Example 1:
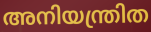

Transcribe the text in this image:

അനിയന്ത്രിത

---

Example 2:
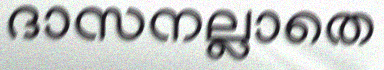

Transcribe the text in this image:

ദാസനല്ലാതെ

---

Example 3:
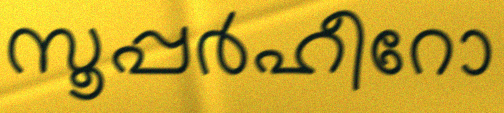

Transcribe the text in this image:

സൂപ്പർഹീറോ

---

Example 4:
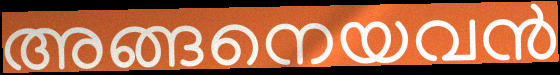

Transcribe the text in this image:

അങ്ങനെയവൻ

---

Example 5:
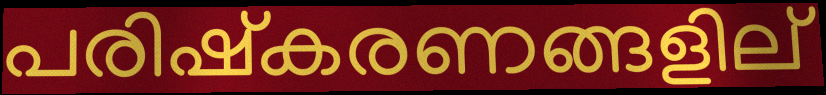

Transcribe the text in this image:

പരിഷ്കരണങ്ങളില്